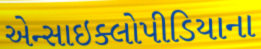
એન્સાઇક્લોપીડિયાના